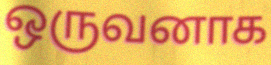
ஒருவனாக